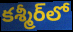
కశ్మీర్‌లో